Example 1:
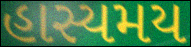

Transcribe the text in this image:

હાસ્યમય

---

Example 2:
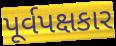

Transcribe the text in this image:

પૂર્વપક્ષકાર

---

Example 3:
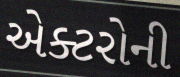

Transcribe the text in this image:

એક્ટરોની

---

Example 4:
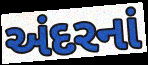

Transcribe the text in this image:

અંદરનાં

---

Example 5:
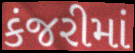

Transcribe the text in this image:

કંજરીમાં